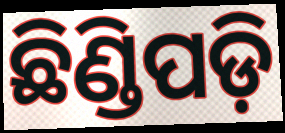
ଛିଣ୍ଡିପଡ଼ି